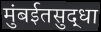
मुंबईतसुद्धा